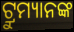
ଟ୍ରୁମ୍ୟାନଙ୍କ